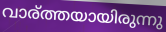
വാര്ത്തയായിരുന്നു